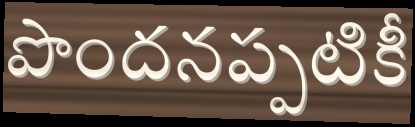
పొందనప్పటికీ